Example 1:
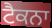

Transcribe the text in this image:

ਟੈਕਨਾ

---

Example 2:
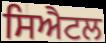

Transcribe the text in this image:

ਸਿਐਟਲ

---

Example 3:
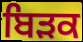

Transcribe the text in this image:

ਬਿੜਕ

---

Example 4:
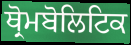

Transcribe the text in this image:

ਥ੍ਰੋਮਬੋਲਿਟਿਕ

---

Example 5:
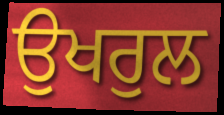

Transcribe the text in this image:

ਉਖਰੁਲ